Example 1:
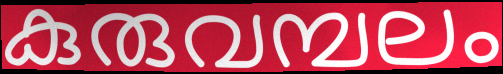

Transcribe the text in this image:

കുരുവമ്പലം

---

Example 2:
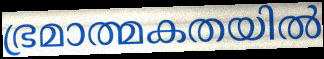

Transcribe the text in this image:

ഭ്രമാത്മകതയിൽ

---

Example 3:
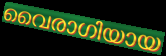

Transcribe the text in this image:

വൈരാഗിയായ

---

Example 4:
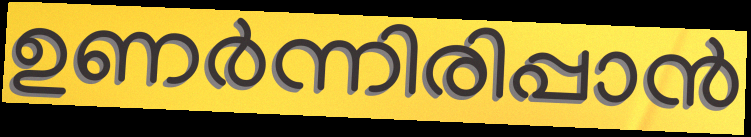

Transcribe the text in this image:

ഉണർന്നിരിപ്പാൻ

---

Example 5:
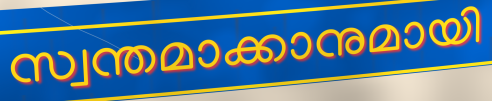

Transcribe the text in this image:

സ്വന്തമാക്കാനുമായി